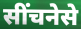
सींचनेसे